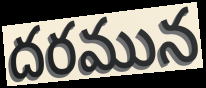
దరమున